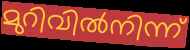
മുറിവിൽനിന്ന്